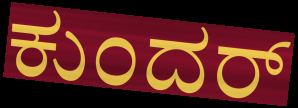
ಕುಂದರ್